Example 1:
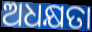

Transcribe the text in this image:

ଅଧକ୍ଷତା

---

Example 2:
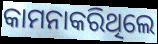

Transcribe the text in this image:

କାମନାକରିଥିଲେ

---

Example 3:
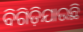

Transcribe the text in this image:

ବିଗିଡ଼ିଯାଉଛି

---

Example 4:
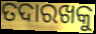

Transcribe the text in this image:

ତଦାରଖକୁ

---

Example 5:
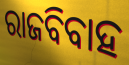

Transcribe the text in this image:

ରାଜବିବାହ